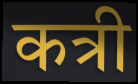
कत्री